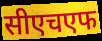
सीएचएफ